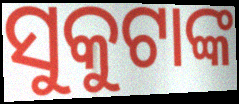
ସୁକୁଟାଙ୍କ